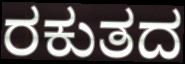
ರಕುತದ